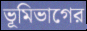
ভূমিভাগের